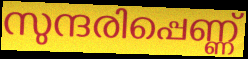
സുന്ദരിപ്പെണ്ണ്